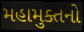
મહામુક્તનો